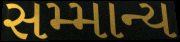
સમ્માન્ય